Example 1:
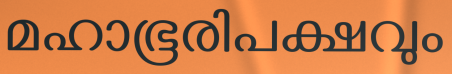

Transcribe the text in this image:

മഹാഭൂരിപക്ഷവും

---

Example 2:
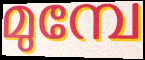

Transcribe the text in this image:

മുമ്പേ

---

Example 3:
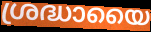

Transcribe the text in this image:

ശ്രദ്ധായൈ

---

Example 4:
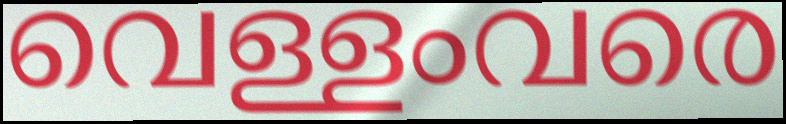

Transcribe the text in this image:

വെള്ളംവരെ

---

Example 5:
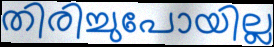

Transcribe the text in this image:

തിരിച്ചുപോയില്ല